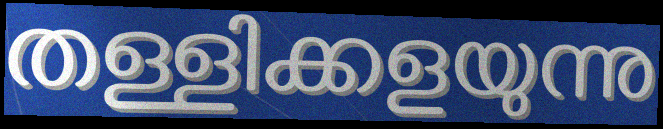
തള്ളിക്കളയുന്നു